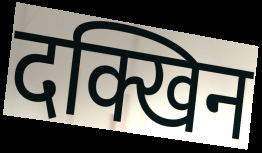
दक्खिन